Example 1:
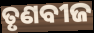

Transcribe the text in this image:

ତୃଣବୀଜ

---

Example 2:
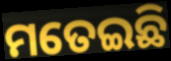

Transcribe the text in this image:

ମତେଇଛି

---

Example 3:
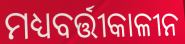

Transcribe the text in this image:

ମଧ୍ୟବର୍ତ୍ତୀକାଳୀନ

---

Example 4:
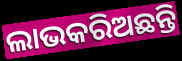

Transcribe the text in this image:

ଲାଭକରିଅଛନ୍ତି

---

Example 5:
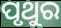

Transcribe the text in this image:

ପୃଥୁର